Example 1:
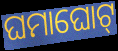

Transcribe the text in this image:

ଘମାଘୋଟ୍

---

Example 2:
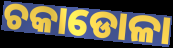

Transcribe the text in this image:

ଚକାଡୋଳା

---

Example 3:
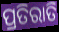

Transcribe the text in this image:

ପ୍ରତିରାତି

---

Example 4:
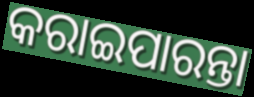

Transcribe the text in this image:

କରାଇପାରନ୍ତା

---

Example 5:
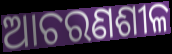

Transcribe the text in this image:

ଆଚରଣଶୀଳ